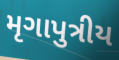
મૃગાપુત્રીય